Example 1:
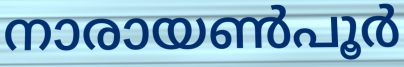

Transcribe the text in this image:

നാരായൺപൂർ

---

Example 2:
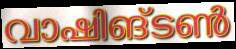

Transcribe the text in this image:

വാഷിങ്ടൺ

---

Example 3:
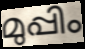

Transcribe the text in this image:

മുപ്പിം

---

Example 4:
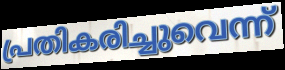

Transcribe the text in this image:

പ്രതികരിച്ചുവെന്ന്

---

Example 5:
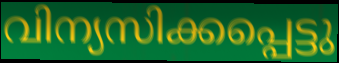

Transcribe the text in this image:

വിന്യസിക്കപ്പെട്ടു